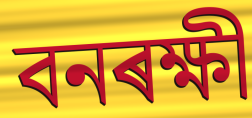
বনৰক্ষী